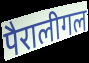
पैरालीगल